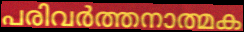
പരിവർത്തനാത്മക